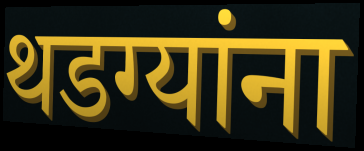
थडग्यांना